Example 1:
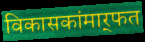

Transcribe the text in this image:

विकासकांमार्फत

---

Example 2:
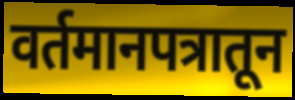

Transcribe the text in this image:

वर्तमानपत्रातून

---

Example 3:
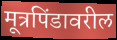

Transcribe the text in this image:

मूत्रपिंडावरील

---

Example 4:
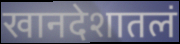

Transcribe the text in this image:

खानदेशातलं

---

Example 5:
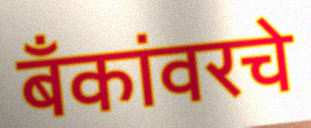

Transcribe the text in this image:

बँकांवरचे